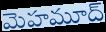
మెహమూద్